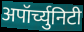
अपॉर्च्युनिटी